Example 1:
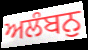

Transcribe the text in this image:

ਅਲੰਬਨੁ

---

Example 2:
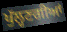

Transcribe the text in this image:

ਖੁੱਲ੍ਹਣਗੀਆਂ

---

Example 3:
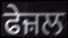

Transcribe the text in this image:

ਫੇਜ਼ਲ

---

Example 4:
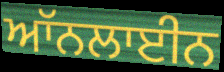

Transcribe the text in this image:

ਆੱਨਲਾਈਨ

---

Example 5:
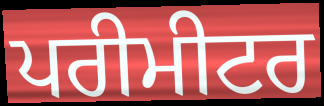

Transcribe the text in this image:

ਪਰੀਮੀਟਰ